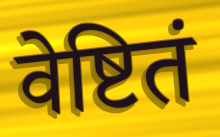
वेष्टितं